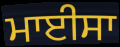
ਮਾਈਸਾ